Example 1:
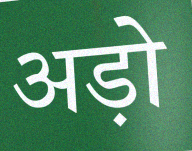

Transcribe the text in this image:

अड़ो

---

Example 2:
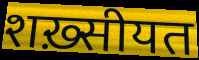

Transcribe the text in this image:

शख़्सीयत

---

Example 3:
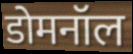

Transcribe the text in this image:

डोमनॉल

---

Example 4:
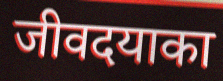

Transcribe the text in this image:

जीवदयाका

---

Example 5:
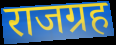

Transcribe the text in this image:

राजग्रह